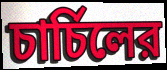
চার্চিলের